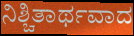
ನಿಶ್ಚಿತಾರ್ಥವಾದ